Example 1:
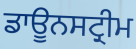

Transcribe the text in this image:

ਡਾਊਨਸਟ੍ਰੀਮ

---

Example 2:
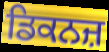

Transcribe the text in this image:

ਡਿਕਨਜ਼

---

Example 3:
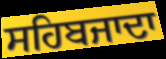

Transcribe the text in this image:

ਸਹਿਬਜਾਦਾ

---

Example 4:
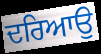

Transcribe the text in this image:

ਦਰਿਆਉ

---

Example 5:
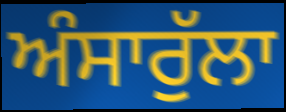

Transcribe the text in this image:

ਅੰਸਾਰੁੱਲਾ